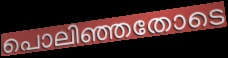
പൊലിഞ്ഞതോടെ